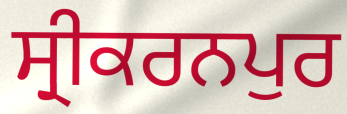
ਸ੍ਰੀਕਰਨਪੁਰ